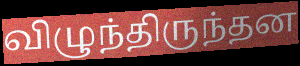
விழுந்திருந்தன